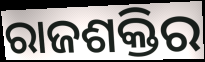
ରାଜଶକ୍ତିର